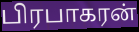
பிரபாகரன்